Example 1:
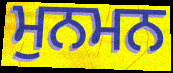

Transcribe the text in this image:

ਮੁਨਮਨ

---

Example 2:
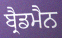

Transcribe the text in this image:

ਬ੍ਰੈਡਮੈਨ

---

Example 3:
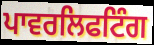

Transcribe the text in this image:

ਪਾਵਰਲਿਫਟਿੰਗ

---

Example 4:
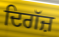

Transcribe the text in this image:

ਦਿਗੱਜ਼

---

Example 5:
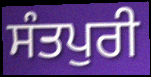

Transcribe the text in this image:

ਸੰਤਪੁਰੀ